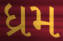
ધ્રમ